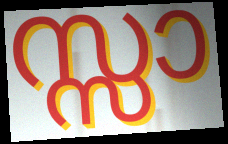
സ്സാ